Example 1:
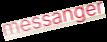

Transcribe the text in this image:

messanger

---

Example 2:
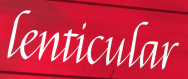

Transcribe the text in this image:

lenticular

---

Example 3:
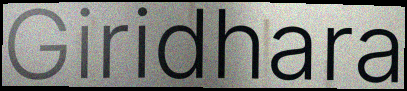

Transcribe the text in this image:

Giridhara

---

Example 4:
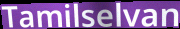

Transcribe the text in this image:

Tamilselvan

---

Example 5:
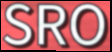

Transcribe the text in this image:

SRO